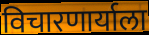
विचारणार्याला